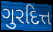
ગુરદિત્ત